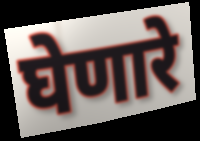
घेणारे